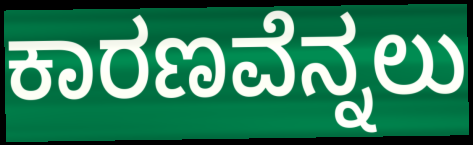
ಕಾರಣವೆನ್ನಲು